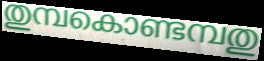
തുമ്പകൊണ്ടമ്പതു